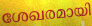
ശേഖരമായി